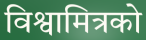
विश्वामित्रको